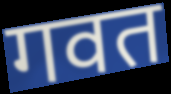
गवत